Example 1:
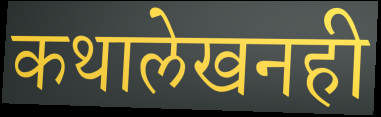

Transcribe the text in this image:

कथालेखनही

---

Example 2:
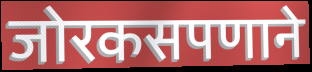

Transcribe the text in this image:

जोरकसपणाने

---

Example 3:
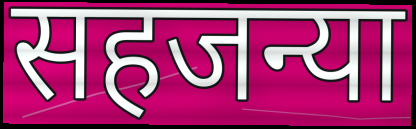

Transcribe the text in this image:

सहजन्या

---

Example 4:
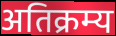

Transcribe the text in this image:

अतिक्रम्य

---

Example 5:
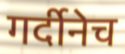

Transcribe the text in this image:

गर्दीनेच